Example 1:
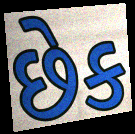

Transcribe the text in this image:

છેક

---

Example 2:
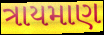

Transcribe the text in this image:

ત્રાયમાણ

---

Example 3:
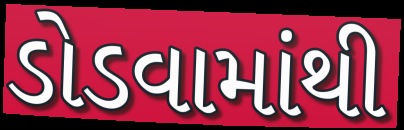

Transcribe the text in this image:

ડોડવામાંથી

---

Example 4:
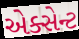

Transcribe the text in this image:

એક્સેન્ટ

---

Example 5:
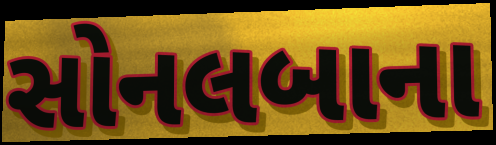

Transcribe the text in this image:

સોનલબાના